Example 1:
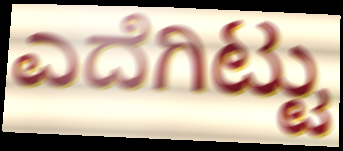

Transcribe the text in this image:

ಎದೆಗಿಟ್ಟು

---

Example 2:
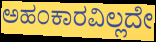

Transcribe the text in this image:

ಅಹಂಕಾರವಿಲ್ಲದೇ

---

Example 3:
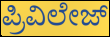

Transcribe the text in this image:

ಪ್ರಿವಿಲೇಜ್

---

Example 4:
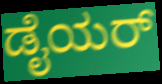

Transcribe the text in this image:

ಡೈಯರ್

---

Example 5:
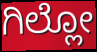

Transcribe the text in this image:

ಗಿಲ್ಲೋ